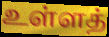
உள்ளத்